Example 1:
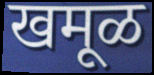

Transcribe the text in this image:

खमूळ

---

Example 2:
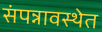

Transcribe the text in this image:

संपन्नावस्थेत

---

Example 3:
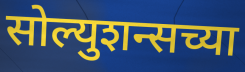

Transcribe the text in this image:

सोल्युशन्सच्या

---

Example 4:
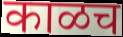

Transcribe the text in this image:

काळच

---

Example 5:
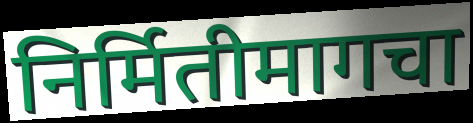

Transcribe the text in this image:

निर्मितीमागचा